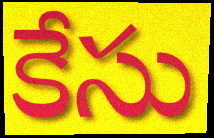
కేసు